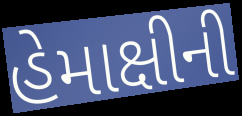
હેમાક્ષીની